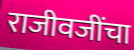
राजीवजींचा